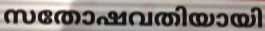
സതോഷവതിയായി